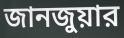
জানজুয়ার